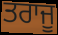
ਤਰਾਜੂ